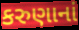
કરુણાનાં